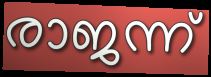
രാജന്ന്